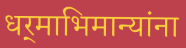
धर्माभिमान्यांना